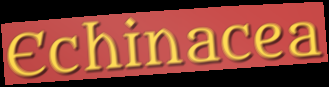
Echinacea